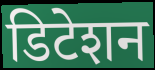
डिटेशन